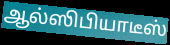
ஆல்ஸிபியாடீஸ்